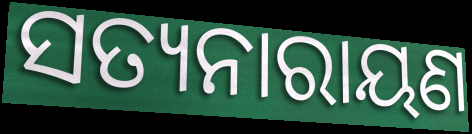
ସତ୍ୟନାରାୟଣ